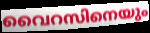
വൈറസിനെയും